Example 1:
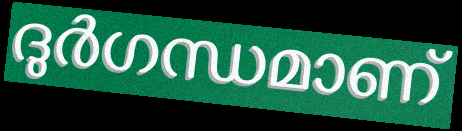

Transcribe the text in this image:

ദുർഗന്ധമാണ്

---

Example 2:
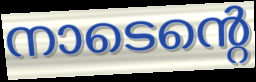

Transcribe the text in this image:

നാടെന്റെ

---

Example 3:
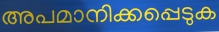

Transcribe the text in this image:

അപമാനിക്കപ്പെടുക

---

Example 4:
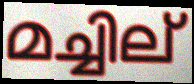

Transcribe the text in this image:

മച്ചില്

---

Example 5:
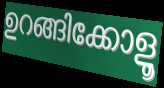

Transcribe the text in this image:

ഉറങ്ങിക്കോളൂ